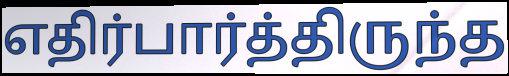
எதிர்பார்த்திருந்த